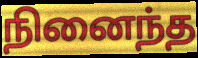
நினைந்த